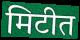
मिटीत